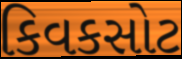
કિવકસોટ